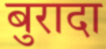
बुरादा